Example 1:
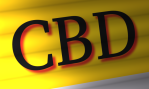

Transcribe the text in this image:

CBD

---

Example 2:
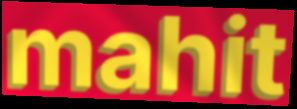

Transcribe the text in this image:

mahit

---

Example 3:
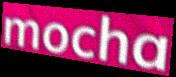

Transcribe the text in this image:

mocha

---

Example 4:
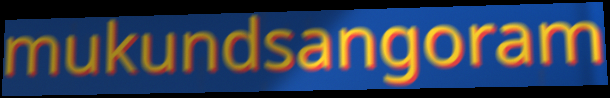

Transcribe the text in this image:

mukundsangoram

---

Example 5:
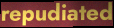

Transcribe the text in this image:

repudiated